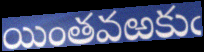
యింతవఱకుఁ